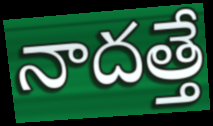
నాదత్తే